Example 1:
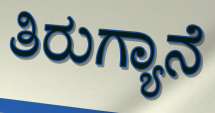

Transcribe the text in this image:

ತಿರುಗ್ಯಾನೆ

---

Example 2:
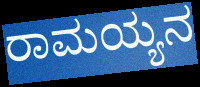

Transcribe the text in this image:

ರಾಮಯ್ಯನ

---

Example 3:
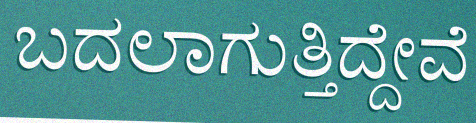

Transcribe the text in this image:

ಬದಲಾಗುತ್ತಿದ್ದೇವೆ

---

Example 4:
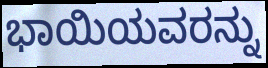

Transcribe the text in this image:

ಭಾಯಿಯವರನ್ನು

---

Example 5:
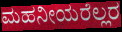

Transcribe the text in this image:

ಮಹನೀಯರೆಲ್ಲರ